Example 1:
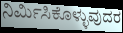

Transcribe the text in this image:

ನಿರ್ಮಿಸಿಕೊಳ್ಳುವುದರ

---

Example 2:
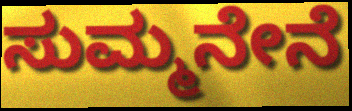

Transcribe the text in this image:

ಸುಮ್ಮನೇನೆ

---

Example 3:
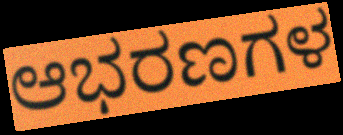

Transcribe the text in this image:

ಆಭರಣಗಳ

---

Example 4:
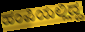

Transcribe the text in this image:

ಹಂಪಿಯಲ್ಲಿದ್ದ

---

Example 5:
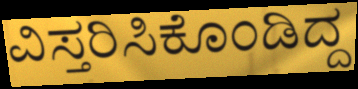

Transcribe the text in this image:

ವಿಸ್ತರಿಸಿಕೊಂಡಿದ್ದ